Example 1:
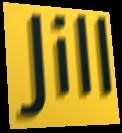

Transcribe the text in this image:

Jill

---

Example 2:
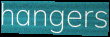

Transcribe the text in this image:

hangers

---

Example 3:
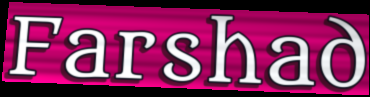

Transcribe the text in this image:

Farshad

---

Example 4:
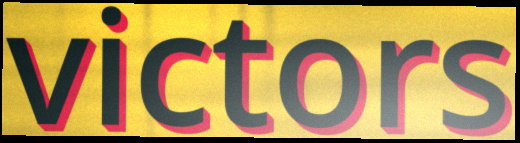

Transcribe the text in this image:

victors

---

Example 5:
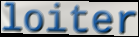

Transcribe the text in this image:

loiter